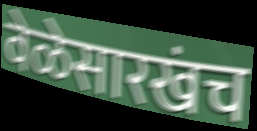
वेळेसारखंच